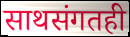
साथसंगतही